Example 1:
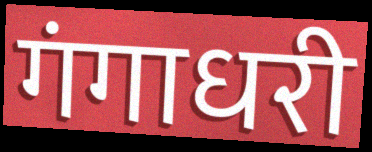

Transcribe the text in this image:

गंगाधरी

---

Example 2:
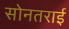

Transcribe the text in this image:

सोनतराई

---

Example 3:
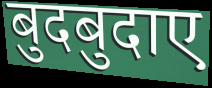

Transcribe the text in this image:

बुदबुदाए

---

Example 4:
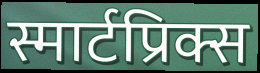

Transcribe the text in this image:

स्मार्टप्रिक्स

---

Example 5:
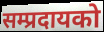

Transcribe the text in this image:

सम्प्रदायको